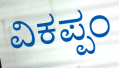
ವಿಕಪ್ಪಂ